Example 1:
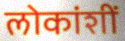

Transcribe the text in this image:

लोकांशीं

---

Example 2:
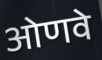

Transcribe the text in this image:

ओणवे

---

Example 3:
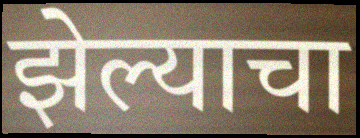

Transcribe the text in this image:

झेल्याचा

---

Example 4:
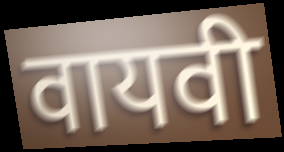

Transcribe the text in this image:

वायवी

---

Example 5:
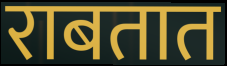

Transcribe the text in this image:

राबतात